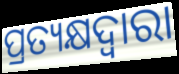
ପ୍ରତ୍ୟକ୍ଷଦ୍ବାରା